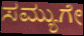
ಸಮ್ಯುಗೇ